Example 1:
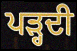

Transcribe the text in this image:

ਪਡ਼੍ਹਦੀ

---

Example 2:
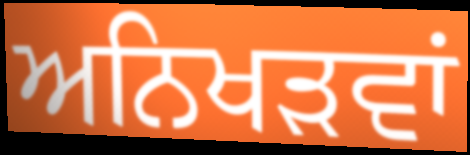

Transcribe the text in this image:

ਅਨਿਖੜਵਾਂ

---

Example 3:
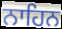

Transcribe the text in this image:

ਨਾਹਿਨ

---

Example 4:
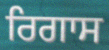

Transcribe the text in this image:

ਰਿਗਾਸ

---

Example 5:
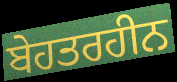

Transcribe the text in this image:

ਬੇਹਤਰਹੀਨ